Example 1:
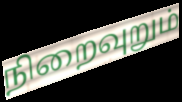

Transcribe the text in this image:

நிறைவுறும்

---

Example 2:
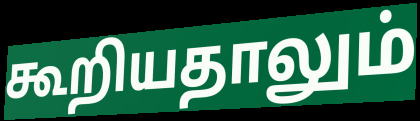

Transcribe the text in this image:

கூறியதாலும்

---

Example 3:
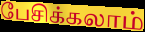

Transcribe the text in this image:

பேசிக்கலாம்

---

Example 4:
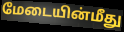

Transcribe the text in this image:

மேடையின்மீது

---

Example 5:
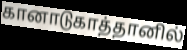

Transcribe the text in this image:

கானாடுகாத்தானில்